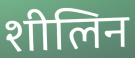
शीलिन